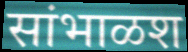
सांभाळश